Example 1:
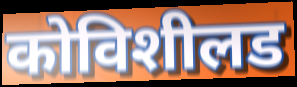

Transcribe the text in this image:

कोविशीलड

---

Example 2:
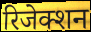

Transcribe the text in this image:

रिजेक्शन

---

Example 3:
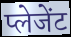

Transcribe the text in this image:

प्लेजेंट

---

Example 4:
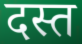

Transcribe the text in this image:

दस्त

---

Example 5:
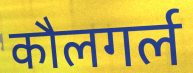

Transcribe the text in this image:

कौलगर्ल